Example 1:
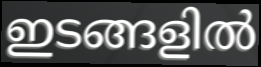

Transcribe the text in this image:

ഇടങ്ങളിൽ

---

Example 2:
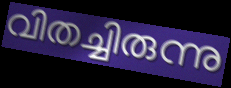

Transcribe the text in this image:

വിതച്ചിരുന്നു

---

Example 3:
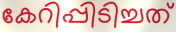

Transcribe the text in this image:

കേറിപ്പിടിച്ചത്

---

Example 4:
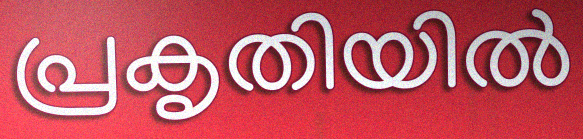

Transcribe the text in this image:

പ്രകൃതിയിൽ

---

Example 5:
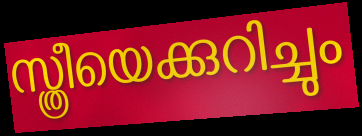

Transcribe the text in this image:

സ്ത്രീയെക്കുറിച്ചും